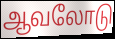
ஆவலோடு